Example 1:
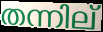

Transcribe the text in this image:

തന്നില്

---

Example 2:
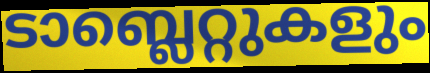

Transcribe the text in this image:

ടാബ്ലെറ്റുകളും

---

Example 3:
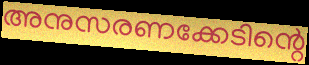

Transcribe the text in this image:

അനുസരണക്കേടിന്റെ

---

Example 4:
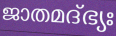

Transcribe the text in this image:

ജാതമദ്ഭ്യഃ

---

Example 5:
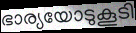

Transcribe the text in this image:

ഭാര്യയോടുകൂടി